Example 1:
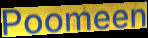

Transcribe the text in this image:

Poomeen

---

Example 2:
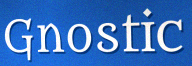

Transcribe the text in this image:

Gnostic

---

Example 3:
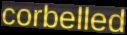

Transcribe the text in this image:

corbelled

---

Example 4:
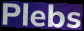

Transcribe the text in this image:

Plebs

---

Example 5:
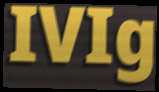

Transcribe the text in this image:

IVIg